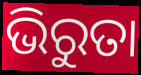
ଭିରୁତା